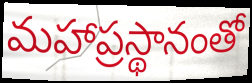
మహాప్రస్థానంతో